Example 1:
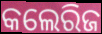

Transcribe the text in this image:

କଲେରିଜ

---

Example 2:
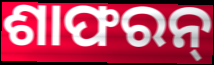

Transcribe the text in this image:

ଶାଫରନ୍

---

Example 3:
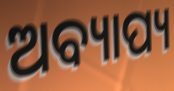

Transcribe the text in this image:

ଅବ୍ୟାପ୍ୟ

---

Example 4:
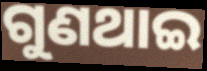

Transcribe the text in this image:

ଗୁଣଥାଇ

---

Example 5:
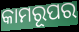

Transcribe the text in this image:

କାମରୂପର